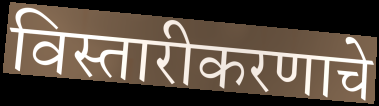
विस्तारीकरणाचे